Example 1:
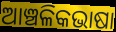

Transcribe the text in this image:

ଆଞ୍ଚଳିକଭାଷା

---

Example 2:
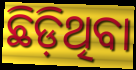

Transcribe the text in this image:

ଛିଡ଼ିଥିବା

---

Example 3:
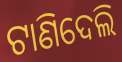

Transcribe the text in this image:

ଟାଣିଦେଲି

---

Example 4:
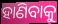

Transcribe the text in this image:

ହାଣିବାକୁ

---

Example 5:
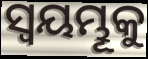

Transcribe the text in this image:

ସ୍ଵୟମ୍ଭୂକୁ